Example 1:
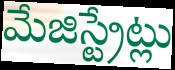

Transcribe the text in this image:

మేజిస్ట్రేట్లు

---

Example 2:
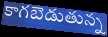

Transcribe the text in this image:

కాగబెడుతున్న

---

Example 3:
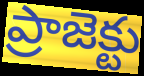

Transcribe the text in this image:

ప్రాజెక్టు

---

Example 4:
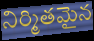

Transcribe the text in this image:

నిర్మితమైన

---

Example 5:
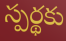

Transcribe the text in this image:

స్పర్థకు